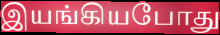
இயங்கியபோது